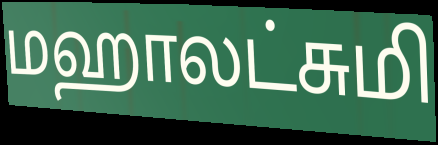
மஹாலட்சுமி